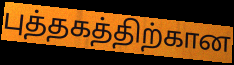
புத்தகத்திற்கான